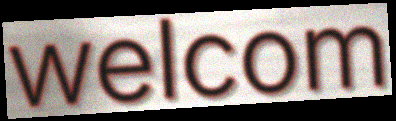
welcom